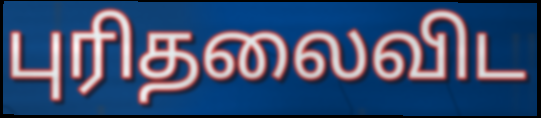
புரிதலைவிட